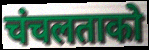
चंचलताको